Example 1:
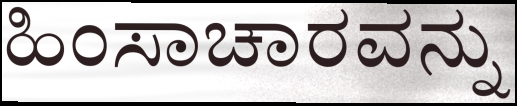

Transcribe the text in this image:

ಹಿಂಸಾಚಾರವನ್ನು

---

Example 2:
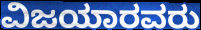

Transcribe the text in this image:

ವಿಜಯಾರವರು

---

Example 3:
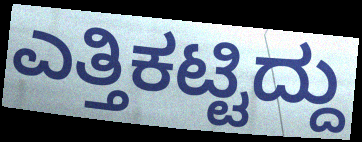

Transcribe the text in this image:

ಎತ್ತಿಕಟ್ಟಿದ್ದು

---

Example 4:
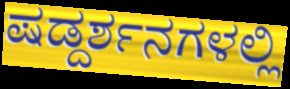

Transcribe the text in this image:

ಷಡ್ದರ್ಶನಗಳಲ್ಲಿ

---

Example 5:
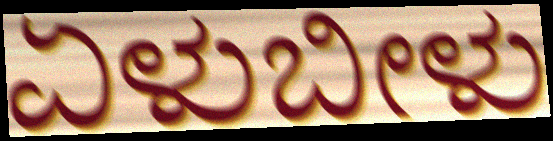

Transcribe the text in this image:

ಏಳುಬೀಳು